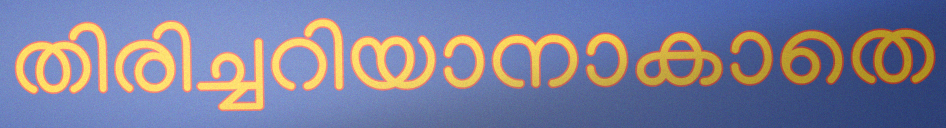
തിരിച്ചറിയാനാകാതെ